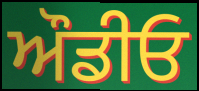
ਔਡੀਓ